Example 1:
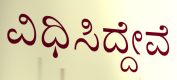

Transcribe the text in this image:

ವಿಧಿಸಿದ್ದೇವೆ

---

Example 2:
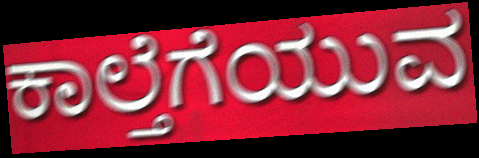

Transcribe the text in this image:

ಕಾಲ್ತೆಗೆಯುವ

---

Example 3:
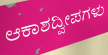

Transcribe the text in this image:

ಆಕಾಶದ್ವೀಪಗಳು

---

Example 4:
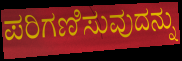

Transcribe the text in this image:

ಪರಿಗಣಿಸುವುದನ್ನು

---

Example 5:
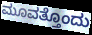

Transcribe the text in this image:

ಮೂವತ್ತೊಂದು